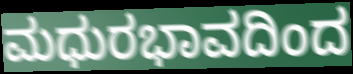
ಮಧುರಭಾವದಿಂದ